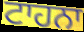
ਟਾਹਨਾ